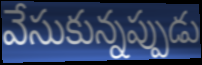
వేసుకున్నప్పుడు